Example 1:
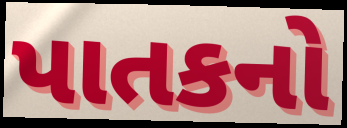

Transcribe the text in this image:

પાતકનો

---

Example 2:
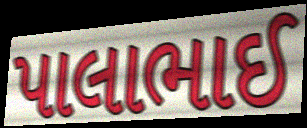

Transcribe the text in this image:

પાલાભાઈ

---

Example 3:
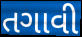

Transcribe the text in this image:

તગાવી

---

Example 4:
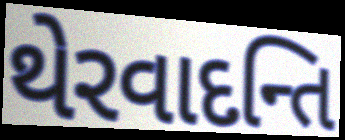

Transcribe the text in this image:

થેરવાદન્તિ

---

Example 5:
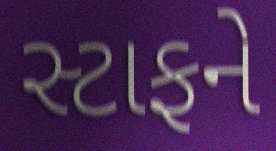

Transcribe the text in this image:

સ્ટાફને